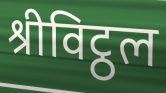
श्रीविट्ठल